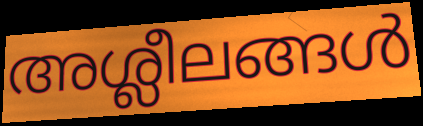
അശ്ലീലങ്ങൾ